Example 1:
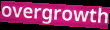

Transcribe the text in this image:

overgrowth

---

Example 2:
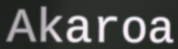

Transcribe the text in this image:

Akaroa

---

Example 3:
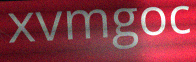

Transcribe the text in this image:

xvmgoc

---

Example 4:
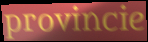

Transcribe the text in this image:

provincie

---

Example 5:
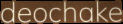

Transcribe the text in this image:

deochake